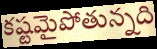
కష్టమైపోతున్నది